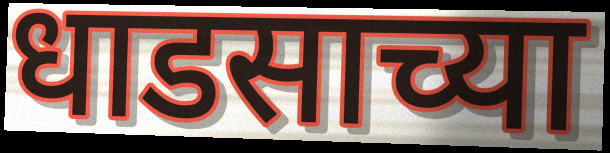
धाडसाच्या